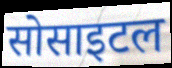
सोसाइटल